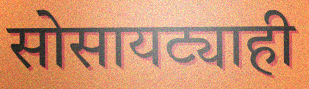
सोसायट्याही